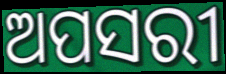
ଅପସରୀ